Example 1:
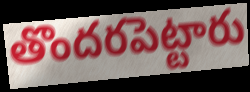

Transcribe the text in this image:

తొందరపెట్టారు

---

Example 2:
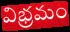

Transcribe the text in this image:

విభ్రమం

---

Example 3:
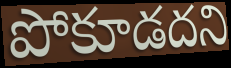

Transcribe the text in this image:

పోకూడదని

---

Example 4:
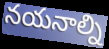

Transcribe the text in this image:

నయనాల్ని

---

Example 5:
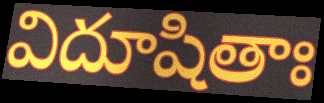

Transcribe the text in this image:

విదూషితాః